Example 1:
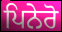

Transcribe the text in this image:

ਪਿਨੇਰੋ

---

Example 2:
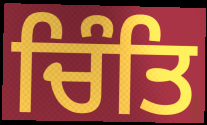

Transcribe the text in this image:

ਚਿੰਤਿ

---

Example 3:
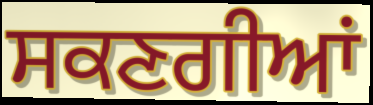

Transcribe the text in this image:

ਸਕਣਗੀਆਂ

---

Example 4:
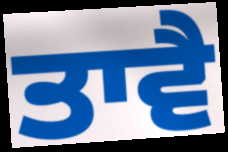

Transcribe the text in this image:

ਤਾਵੈ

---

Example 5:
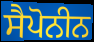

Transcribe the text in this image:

ਸੈਪੋਨੀਨ